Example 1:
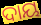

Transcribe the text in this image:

ଦାୟ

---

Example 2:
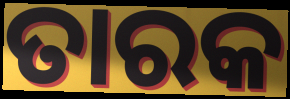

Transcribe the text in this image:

ତାରକ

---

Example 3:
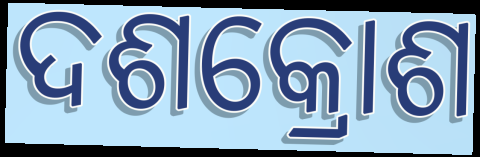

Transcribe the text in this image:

ଦଶକ୍ରୋଶ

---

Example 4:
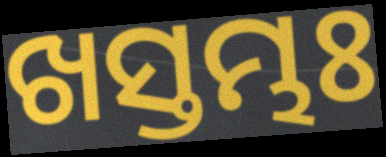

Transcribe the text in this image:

ଖସ୍ତମ୍ଭଃ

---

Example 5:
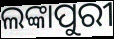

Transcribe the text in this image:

ଲଙ୍କାପୁରୀ